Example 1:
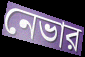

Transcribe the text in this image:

নেভার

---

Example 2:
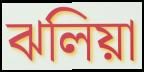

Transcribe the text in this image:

ঝলিয়া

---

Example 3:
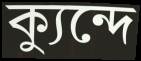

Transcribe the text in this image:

ক্যুন্দে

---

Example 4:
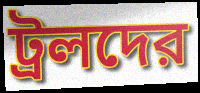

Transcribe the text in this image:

ট্রলদের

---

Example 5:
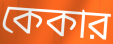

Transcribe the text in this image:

কেকার